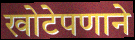
खोटेपणाने